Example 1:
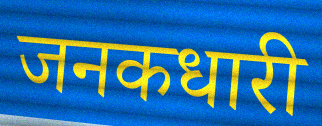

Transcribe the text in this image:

जनकधारी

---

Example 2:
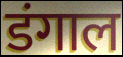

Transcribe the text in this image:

डंगाल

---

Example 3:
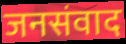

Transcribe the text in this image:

जनसंवाद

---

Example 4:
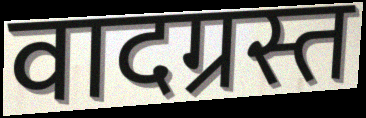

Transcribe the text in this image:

वादग्रस्त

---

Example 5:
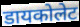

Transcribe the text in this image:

डायकोलेट